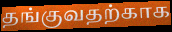
தங்குவதற்காக